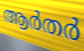
ആർതർ